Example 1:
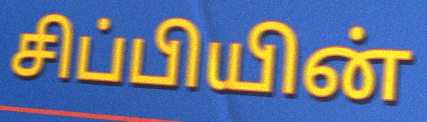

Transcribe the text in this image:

சிப்பியின்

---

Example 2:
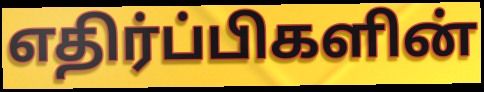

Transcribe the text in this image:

எதிர்ப்பிகளின்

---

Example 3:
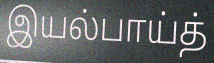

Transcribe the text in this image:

இயல்பாய்த்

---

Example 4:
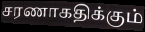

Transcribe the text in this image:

சரணாகதிக்கும்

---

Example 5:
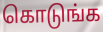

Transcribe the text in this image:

கொடுங்க